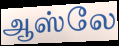
ஆஸ்லே